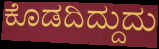
ಕೊಡದಿದ್ದುದು